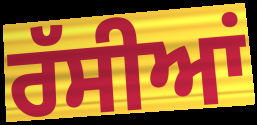
ਰੱਸੀਆਂ